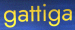
gattiga